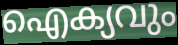
ഐക്യവും